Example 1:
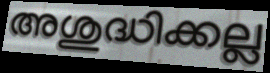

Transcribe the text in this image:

അശുദ്ധിക്കല്ല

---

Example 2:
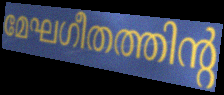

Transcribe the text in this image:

മേഘഗീതത്തിന്റ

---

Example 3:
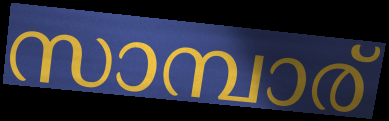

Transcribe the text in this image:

സാമ്പാര്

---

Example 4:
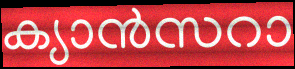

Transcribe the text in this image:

ക്യാൻസറാ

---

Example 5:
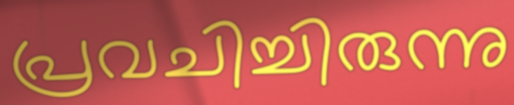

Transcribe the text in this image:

പ്രവചിച്ചിരുന്നു